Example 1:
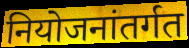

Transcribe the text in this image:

नियोजनांतर्गत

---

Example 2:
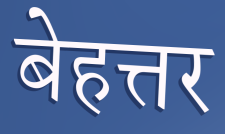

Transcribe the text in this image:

बेहत्तर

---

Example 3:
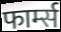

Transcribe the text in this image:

फार्म्स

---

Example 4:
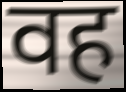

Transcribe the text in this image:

वह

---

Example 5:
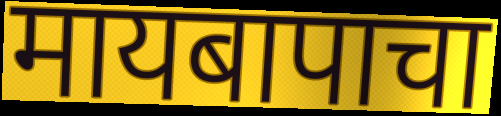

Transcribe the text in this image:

मायबापाचा